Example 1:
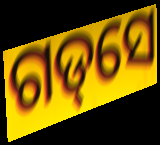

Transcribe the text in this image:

ଗଡ୍‌ସେ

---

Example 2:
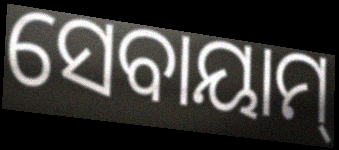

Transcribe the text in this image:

ସେବାୟାମ୍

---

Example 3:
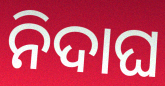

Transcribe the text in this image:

ନିଦାଘ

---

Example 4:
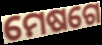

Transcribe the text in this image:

ମେଷଗେ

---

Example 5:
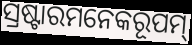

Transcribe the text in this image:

ସ୍ରଷ୍ଟାରମନେକରୂପମ୍